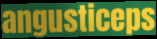
angusticeps